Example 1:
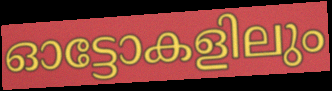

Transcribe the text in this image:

ഓട്ടോകളിലും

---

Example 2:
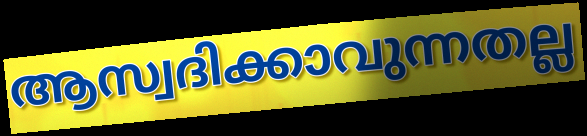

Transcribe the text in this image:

ആസ്വദിക്കാവുന്നതല്ല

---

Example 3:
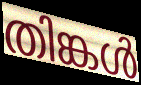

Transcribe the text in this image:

തിങ്കൾ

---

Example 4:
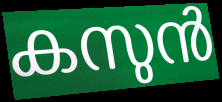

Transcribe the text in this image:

കസുൻ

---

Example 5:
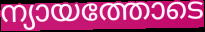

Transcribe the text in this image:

ന്യായത്തോടെ